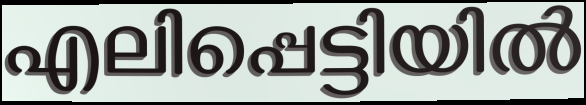
എലിപ്പെട്ടിയിൽ